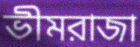
ভীমরাজা